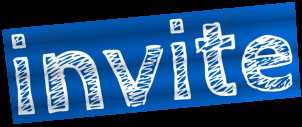
invite